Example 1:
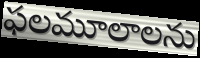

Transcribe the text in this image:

ఫలమూలాలను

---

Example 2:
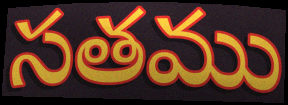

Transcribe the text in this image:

సతము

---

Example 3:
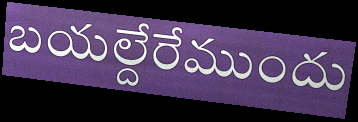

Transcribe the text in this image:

బయల్దేరేముందు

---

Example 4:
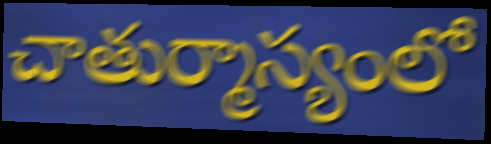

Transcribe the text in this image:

చాతుర్మాస్యంలో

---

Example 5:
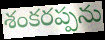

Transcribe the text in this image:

శంకరప్పను